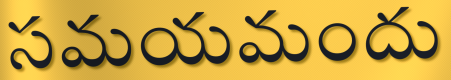
సమయమందు